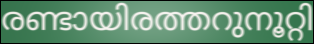
രണ്ടായിരത്തറുനൂറ്റി